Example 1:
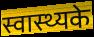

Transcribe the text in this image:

स्वास्थ्यके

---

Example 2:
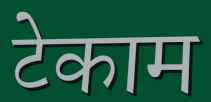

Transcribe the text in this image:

टेकाम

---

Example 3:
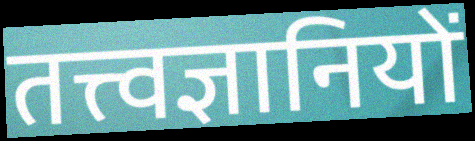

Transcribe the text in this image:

तत्त्वज्ञानियों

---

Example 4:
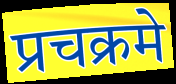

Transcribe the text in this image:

प्रचक्रमे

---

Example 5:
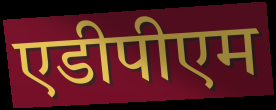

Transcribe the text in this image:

एडीपीएम